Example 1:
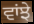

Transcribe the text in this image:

ਵਾਂਝੇ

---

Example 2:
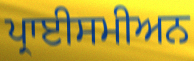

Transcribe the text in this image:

ਪ੍ਰਾਈਸਮੀਅਨ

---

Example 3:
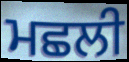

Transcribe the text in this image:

ਮਛਲੀ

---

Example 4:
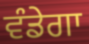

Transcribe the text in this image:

ਵੰਡੇਗਾ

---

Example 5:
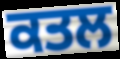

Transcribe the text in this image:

ਕਤਲ